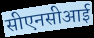
सीएनसीआई